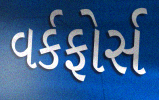
વર્કફોર્સ